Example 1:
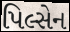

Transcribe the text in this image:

પિલ્સેન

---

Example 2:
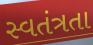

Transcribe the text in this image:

સ્વતંત્રતા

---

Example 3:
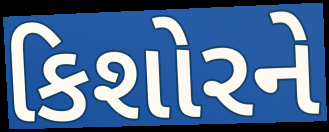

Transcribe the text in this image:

કિશોરને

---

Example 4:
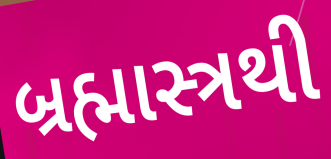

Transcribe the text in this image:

બ્રહ્માસ્ત્રથી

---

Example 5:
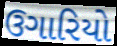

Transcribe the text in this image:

ઉગારિયો